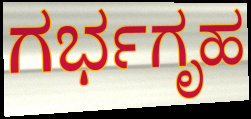
ಗರ್ಭಗೃಹ